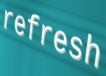
refresh